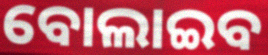
ବୋଲାଇବ